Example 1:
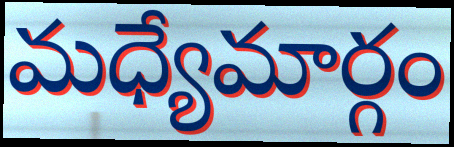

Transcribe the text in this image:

మధ్యేమార్గం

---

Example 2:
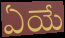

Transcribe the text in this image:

ఏయే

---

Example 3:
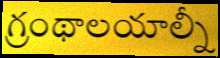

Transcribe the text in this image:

గ్రంథాలయాల్నీ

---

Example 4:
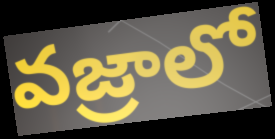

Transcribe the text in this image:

వజ్రాలో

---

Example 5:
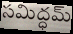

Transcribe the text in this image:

సమిద్ధమ్